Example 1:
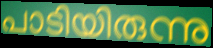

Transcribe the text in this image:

പാടിയിരുന്നു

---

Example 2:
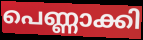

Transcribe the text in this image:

പെണ്ണാക്കി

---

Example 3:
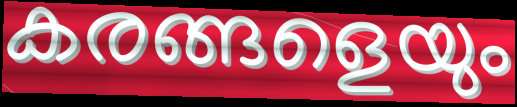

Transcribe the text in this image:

കരങ്ങളെയും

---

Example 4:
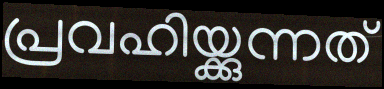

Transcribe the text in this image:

പ്രവഹിയ്ക്കുന്നത്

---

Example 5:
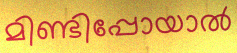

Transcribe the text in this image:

മിണ്ടിപ്പോയാൽ